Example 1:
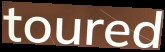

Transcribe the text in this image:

toured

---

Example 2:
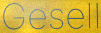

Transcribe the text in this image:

Gesell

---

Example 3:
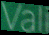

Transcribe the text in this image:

Vali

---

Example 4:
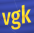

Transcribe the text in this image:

vgk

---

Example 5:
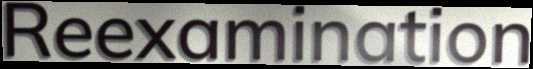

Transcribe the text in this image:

Reexamination